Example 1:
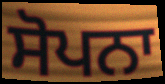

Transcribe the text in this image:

ਸੋਪਨਾ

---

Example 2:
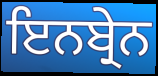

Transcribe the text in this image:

ਇਨਬ੍ਰੇਨ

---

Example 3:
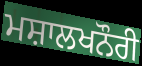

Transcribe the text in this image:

ਮਸ਼ਾਲਖਨੌਰੀ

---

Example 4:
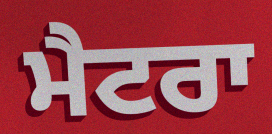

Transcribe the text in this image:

ਮੈਟਰਾ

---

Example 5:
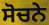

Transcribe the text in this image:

ਸੋਚਨੇ